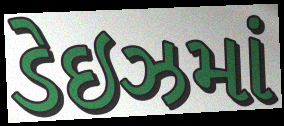
ડેઇઝમાં